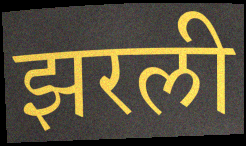
झरली